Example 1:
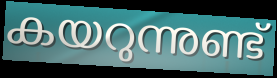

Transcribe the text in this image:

കയറുന്നുണ്ട്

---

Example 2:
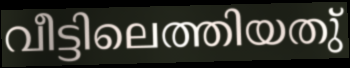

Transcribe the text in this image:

വീട്ടിലെത്തിയതു്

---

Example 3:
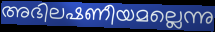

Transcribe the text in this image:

അഭിലഷണീയമല്ലെന്നു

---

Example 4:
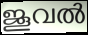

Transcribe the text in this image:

ജൂവൽ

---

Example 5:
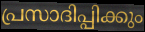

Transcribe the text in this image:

പ്രസാദിപ്പിക്കും